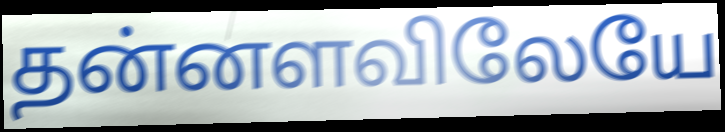
தன்னளவிலேயே